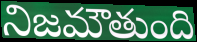
నిజమౌతుంది